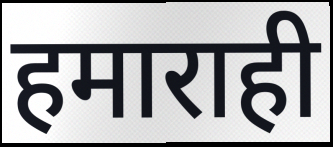
हमाराही